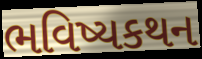
ભવિષ્યકથન